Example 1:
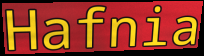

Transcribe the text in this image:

Hafnia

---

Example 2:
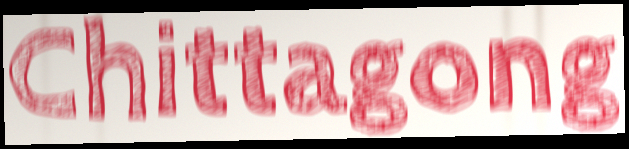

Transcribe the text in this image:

Chittagong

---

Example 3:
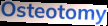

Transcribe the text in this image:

Osteotomy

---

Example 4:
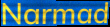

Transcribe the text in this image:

Narmad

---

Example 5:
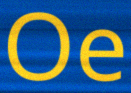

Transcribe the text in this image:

Oe